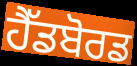
ਹੈੱਡਬੋਰਡ